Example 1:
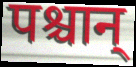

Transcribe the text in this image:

पश्चान्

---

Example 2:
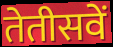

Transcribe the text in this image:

तेतीसवें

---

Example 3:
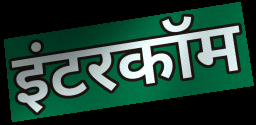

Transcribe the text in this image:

इंटरकॉम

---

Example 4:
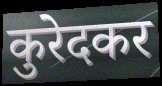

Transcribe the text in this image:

कुरेदकर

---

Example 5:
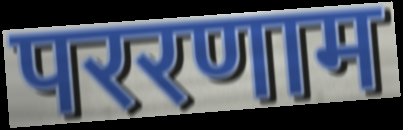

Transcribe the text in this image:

पररणाम